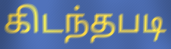
கிடந்தபடி